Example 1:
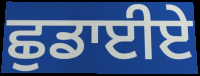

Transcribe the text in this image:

ਛੁਡਾਈਏ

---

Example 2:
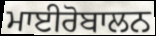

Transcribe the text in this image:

ਮਾਈਰੋਬਾਲਨ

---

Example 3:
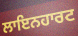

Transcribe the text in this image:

ਲਾਇਨਹਾਰਟ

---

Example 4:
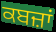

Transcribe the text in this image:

ਕਬਜ਼ਾਂ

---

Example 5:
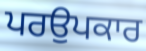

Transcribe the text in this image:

ਪਰਉਪਕਾਰ